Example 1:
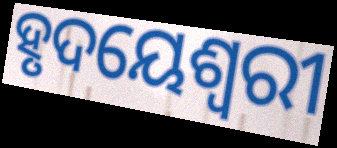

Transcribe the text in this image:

ହୃଦୟେଶ୍ୱରୀ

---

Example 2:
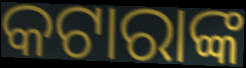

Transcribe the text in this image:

କଟାରାଙ୍କ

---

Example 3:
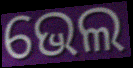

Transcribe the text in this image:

ଭେଲ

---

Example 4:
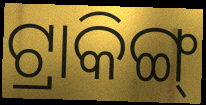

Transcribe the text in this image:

ଟ୍ରାକିଙ୍ଗ୍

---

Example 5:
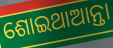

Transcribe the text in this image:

ଶୋଇଥାଆନ୍ତା